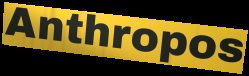
Anthropos